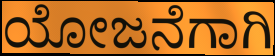
ಯೋಜನೆಗಾಗಿ